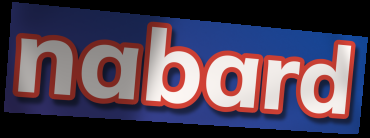
nabard